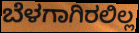
ಬೆಳಗಾಗಿರಲಿಲ್ಲ